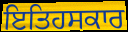
ਇਤਿਹਸਕਾਰ